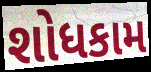
શોધકામ